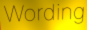
Wording